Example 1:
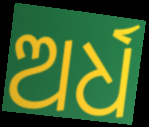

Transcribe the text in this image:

ଅର୍ଧ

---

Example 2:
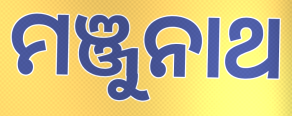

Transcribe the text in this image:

ମଞ୍ଜୁନାଥ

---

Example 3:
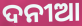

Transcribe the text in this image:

ଦନୀଆ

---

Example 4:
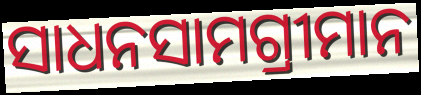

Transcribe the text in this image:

ସାଧନସାମଗ୍ରୀମାନ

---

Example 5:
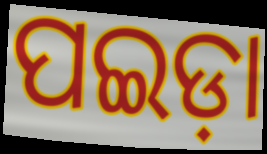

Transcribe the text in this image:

ପଇଡ଼ା